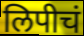
लिपीचं